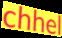
chhel